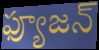
ఫ్యూజన్